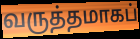
வருத்தமாகப்